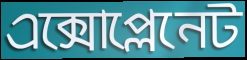
এক্সোপ্লেনেট